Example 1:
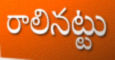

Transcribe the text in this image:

రాలినట్టు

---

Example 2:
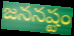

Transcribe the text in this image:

జననష్టం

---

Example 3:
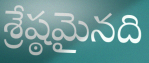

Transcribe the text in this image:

శ్రేష్ఠమైనది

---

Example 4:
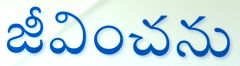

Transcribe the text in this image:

జీవించను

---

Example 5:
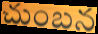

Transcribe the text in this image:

చుంబన